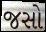
જસો